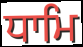
ਧਾਮਿ